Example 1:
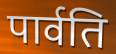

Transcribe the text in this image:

पार्वति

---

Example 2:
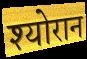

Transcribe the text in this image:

श्योरान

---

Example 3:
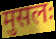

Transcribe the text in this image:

मुसलः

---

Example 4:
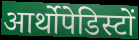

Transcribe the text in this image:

आर्थोपेडिस्टों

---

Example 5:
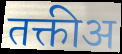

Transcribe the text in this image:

तक्तीअ